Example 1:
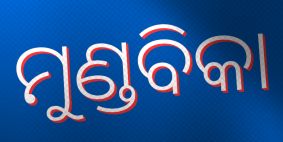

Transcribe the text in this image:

ମୁଣ୍ଡବିକା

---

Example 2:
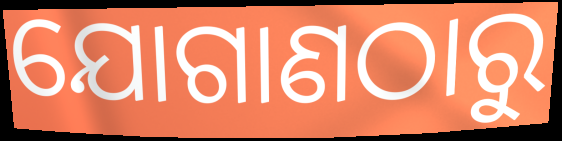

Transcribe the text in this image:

ଯୋଗାଣଠାରୁ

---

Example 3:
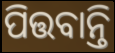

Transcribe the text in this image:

ପିତ୍ତବାନ୍ତି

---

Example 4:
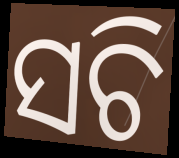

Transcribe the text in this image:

ସଚି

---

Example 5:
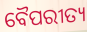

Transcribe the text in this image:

ବୈପରୀତ୍ୟ